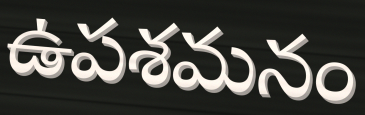
ఉపశమనం